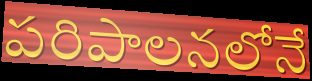
పరిపాలనలోనే